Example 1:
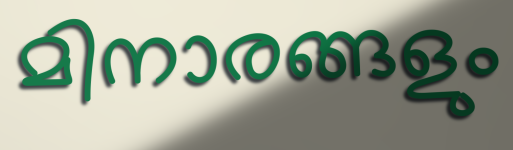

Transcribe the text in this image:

മിനാരങ്ങളും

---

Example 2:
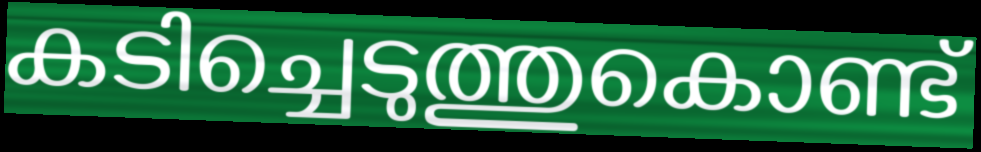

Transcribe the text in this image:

കടിച്ചെടുത്തുകൊണ്ട്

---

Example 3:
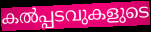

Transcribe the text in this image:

കൽപ്പടവുകളുടെ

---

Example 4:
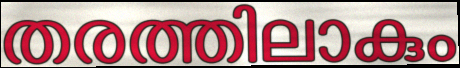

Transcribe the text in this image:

തരത്തിലാകും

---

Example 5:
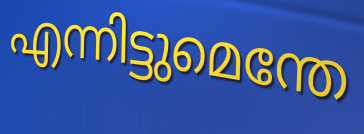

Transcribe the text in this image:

എന്നിട്ടുമെന്തേ